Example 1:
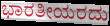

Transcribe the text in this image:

ಭಾರತೀಯರದು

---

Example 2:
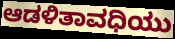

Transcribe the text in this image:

ಆಡಳಿತಾವಧಿಯು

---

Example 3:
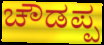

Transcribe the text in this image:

ಚೌಡಪ್ಪ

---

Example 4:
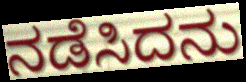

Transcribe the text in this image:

ನಡೆಸಿದನು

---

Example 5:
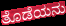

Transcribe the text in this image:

ತೊಡೆಯನು